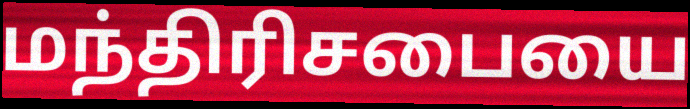
மந்திரிசபையை